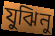
যুঝিনু